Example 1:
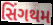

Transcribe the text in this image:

સિંગથમ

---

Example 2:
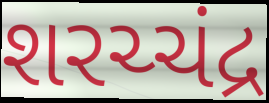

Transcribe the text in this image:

શરચ્ચંદ્ર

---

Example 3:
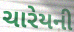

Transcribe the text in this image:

ચારેયની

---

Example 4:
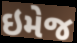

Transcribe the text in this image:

ઇમેજ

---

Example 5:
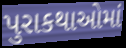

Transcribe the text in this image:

પુરાકથાઓમાં